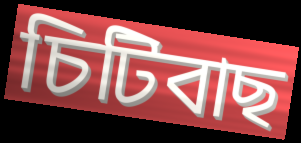
চিটিবাছ